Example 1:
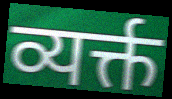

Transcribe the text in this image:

व्यर्क्त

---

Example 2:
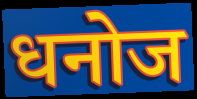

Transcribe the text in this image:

धनोज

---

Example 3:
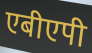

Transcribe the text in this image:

एबीएपी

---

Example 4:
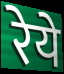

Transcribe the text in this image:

रेये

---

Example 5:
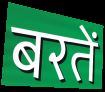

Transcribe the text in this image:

बरतें